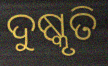
ଦୁଷ୍କୃତି